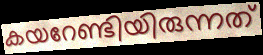
കയറേണ്ടിയിരുന്നത്